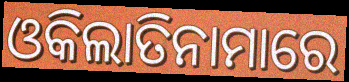
ଓକିଲାତିନାମାରେ